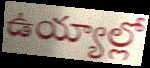
ఉయ్యాల్లో